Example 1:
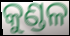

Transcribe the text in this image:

କୁଣ୍ଡଳ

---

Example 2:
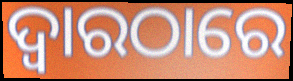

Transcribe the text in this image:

ଦ୍ୱାରଠାରେ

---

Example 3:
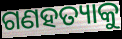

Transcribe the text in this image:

ଗଣହତ୍ୟାକୁ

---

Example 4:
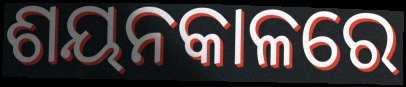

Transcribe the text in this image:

ଶୟନକାଳରେ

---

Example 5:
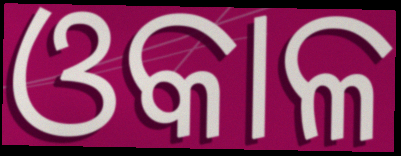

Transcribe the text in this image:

ଓକାଳ